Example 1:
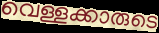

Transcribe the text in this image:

വെള്ളക്കാരുടെ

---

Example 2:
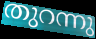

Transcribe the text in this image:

തുറന്നു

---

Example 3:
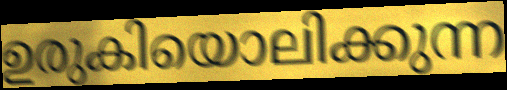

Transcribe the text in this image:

ഉരുകിയൊലിക്കുന്ന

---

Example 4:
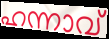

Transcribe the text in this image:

ഹന്നാവ്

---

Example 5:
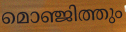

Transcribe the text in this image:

മൊഞ്ജിത്തും